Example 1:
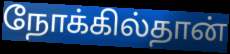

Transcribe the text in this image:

நோக்கில்தான்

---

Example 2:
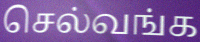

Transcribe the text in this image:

செல்வங்க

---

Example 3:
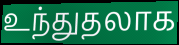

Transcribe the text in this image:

உந்துதலாக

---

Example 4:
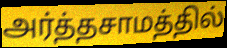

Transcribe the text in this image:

அர்த்தசாமத்தில்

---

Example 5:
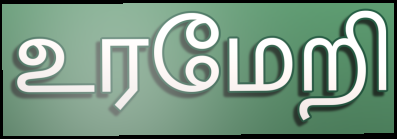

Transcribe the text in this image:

உரமேறி